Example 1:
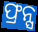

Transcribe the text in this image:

ଫ୍ରନ୍ସ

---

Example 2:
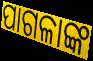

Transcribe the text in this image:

ପାଗଳାଙ୍କ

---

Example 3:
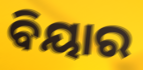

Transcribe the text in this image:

ବିୟାର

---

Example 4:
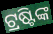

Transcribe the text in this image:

ଟ୍ରଷ୍ଟିଙ୍କ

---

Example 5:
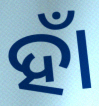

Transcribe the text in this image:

ହାଁ